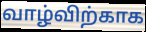
வாழ்விற்காக